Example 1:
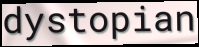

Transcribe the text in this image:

dystopian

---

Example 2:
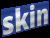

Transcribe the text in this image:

skin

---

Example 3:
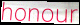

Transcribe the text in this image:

honour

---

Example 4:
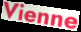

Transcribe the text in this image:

Vienne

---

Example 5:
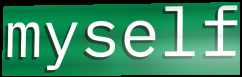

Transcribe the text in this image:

myself